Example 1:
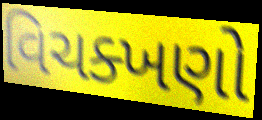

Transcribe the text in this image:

વિચક્ખણો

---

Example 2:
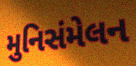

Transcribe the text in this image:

મુનિસંમેલન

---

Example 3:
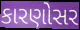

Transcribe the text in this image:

કારણોસર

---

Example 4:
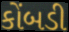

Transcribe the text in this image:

કોંબડી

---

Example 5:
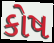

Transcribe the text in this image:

કોષ